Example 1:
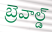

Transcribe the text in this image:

బ్రెవాల్డ్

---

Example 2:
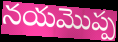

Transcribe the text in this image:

నయమొప్ప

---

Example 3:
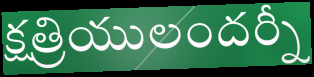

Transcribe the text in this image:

క్షత్రియులందర్నీ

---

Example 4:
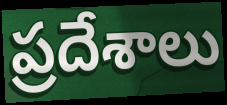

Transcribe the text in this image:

ప్రదేశాలు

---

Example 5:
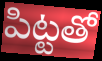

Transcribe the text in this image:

పిట్టతో